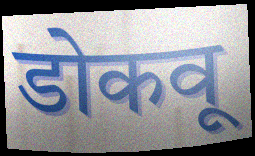
डोकवू